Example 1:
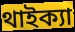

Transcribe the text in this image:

থাইক্যা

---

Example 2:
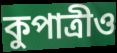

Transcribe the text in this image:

কুপাত্রীও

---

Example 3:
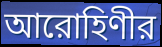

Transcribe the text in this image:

আরোহিণীর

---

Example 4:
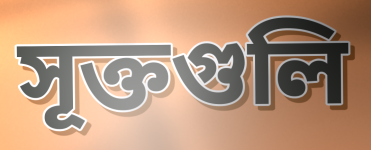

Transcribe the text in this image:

সূক্তগুলি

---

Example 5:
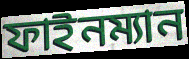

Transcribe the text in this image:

ফাইনম্যান